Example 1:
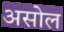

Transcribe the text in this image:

असोल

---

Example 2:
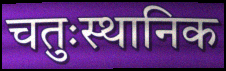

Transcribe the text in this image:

चतुःस्थानिक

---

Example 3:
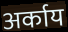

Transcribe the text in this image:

अर्काय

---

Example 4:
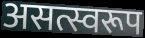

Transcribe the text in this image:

असत्स्वरूप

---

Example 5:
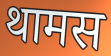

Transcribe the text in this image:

थामस